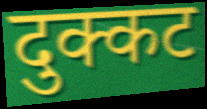
दुक्कट